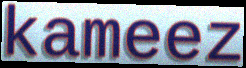
kameez